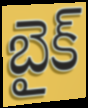
బైక్